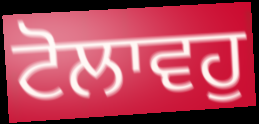
ਟੋਲਾਵਹੁ